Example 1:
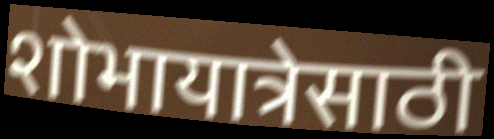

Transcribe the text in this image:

शोभायात्रेसाठी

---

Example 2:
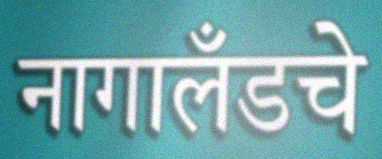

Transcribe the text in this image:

नागालँडचे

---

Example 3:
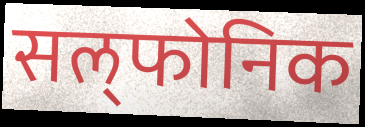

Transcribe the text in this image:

सल्फोनिक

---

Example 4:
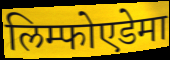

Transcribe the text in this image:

लिम्फोएडेमा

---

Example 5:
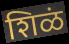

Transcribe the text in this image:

शिळं